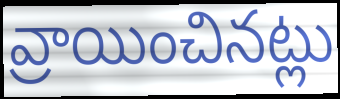
వ్రాయించినట్లు